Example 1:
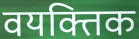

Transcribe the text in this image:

वयक्तिक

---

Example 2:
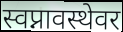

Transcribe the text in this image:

स्वप्नावस्थेवर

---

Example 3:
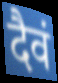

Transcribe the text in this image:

दैवं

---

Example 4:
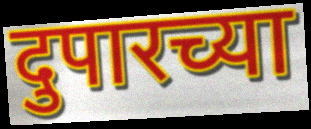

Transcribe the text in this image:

दुपारच्या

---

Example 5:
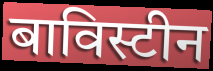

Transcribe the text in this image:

बाविस्टीन